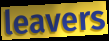
leavers